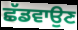
ਛੱਡਵਾਉਣ